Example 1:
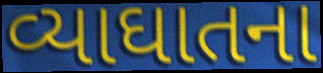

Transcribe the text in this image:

વ્યાઘાતના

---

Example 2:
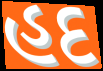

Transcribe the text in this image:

હદ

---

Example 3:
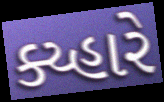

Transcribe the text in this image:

ક્ય્હારે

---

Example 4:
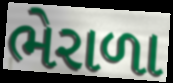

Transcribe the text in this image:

ભેરાળા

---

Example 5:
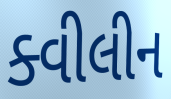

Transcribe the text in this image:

ક્વીલીન